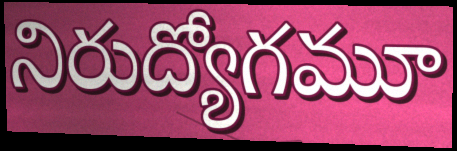
నిరుద్యోగమూ